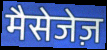
मैसेजेज़